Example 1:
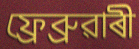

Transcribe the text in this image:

ফ্ৰেব্ৰুৱাৰী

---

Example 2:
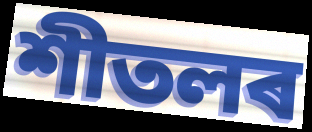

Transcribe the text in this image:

শীতলৰ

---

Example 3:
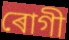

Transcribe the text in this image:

ৰোগী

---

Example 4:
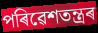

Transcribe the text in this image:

পৰিৱেশতন্ত্ৰৰ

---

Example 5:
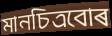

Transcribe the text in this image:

মানচিত্ৰবোৰ